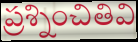
ప్రశ్నించితివి